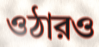
ওঠারও